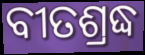
ବୀତଶ୍ରଦ୍ଧ